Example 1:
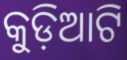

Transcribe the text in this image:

କୁଡ଼ିଆଟି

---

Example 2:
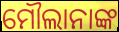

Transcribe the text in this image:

ମୌଲାନାଙ୍କ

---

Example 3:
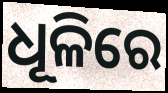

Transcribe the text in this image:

ଧୂଳିରେ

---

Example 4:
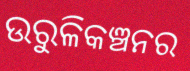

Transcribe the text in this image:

ଉରୁଳିକଞ୍ଚନର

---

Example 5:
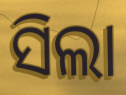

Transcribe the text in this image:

ସିଲା